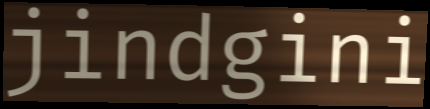
jindgini